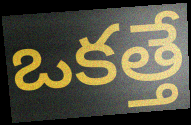
ఒకత్తే